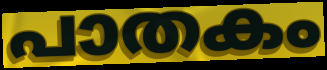
പാതകം